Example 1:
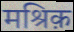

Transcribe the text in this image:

मश्रिक़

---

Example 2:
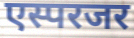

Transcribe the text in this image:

एस्परजर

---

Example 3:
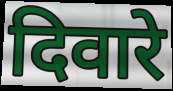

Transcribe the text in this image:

दिवारे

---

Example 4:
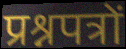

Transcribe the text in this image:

प्रश्नपत्रों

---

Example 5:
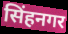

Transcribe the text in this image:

सिंहनगर